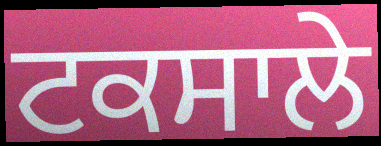
ਟਕਸਾਲੇ